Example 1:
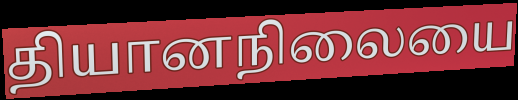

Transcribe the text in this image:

தியானநிலையை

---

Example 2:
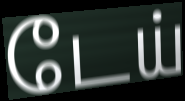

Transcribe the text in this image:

டேய்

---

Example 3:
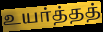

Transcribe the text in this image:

உயர்த்தத்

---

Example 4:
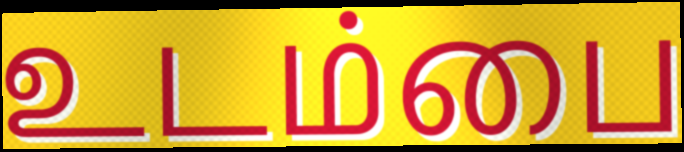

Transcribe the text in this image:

உடம்பை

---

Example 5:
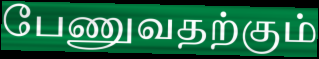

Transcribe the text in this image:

பேணுவதற்கும்